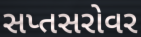
સપ્તસરોવર